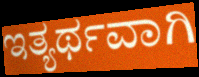
ಇತ್ಯರ್ಥವಾಗಿ